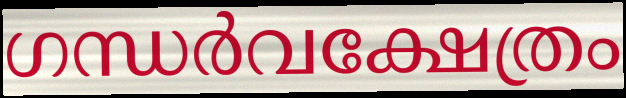
ഗന്ധർവക്ഷേത്രം